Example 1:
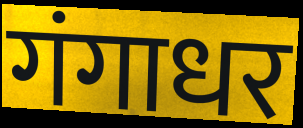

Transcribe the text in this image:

गंगाधर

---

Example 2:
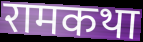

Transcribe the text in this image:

रामकथा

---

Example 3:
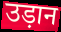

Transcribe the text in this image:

उड़ान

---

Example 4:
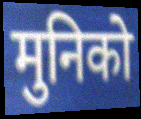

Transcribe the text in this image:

मुनिको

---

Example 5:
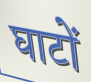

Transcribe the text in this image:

घाटों